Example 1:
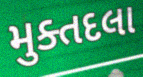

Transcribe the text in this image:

મુક્તદલા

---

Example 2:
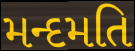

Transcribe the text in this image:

મન્દમતિ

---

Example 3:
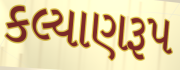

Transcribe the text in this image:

કલ્યાણરૂપ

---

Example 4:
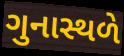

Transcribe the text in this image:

ગુનાસ્થળે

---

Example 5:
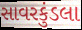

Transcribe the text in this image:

સાવરકુંડલા